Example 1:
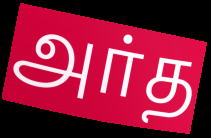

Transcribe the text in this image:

அர்த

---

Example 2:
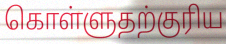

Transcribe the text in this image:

கொள்ளுதற்குரிய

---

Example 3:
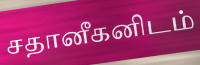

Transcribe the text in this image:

சதானீகனிடம்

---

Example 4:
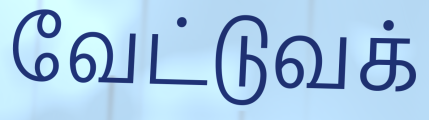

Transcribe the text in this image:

வேட்டுவக்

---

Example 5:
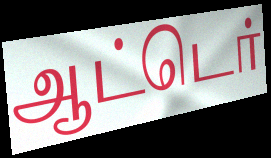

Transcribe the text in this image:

ஆட்டெர்